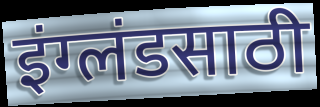
इंग्लंडसाठी